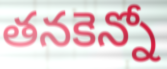
తనకెన్నో